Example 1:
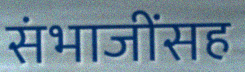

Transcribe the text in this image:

संभाजींसह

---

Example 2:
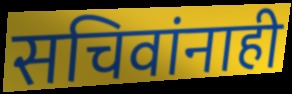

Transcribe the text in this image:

सचिवांनाही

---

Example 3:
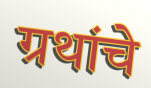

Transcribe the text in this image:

ग्रथांचे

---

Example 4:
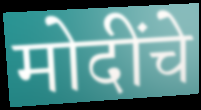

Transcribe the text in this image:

मोदींचे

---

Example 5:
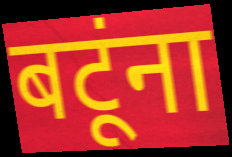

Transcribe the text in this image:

बटूंना